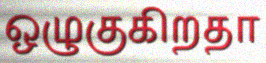
ஒழுகுகிறதா